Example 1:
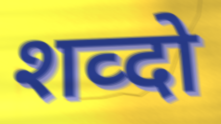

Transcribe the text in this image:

शव्दो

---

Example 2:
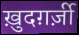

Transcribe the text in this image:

ख़ुदग़र्ज़ी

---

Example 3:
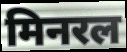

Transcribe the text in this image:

मिनरल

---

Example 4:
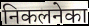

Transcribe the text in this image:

निकलनेका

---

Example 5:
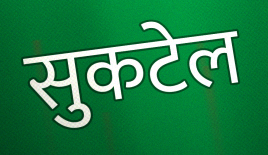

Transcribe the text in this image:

सुकटेल